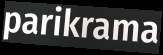
parikrama